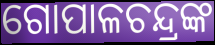
ଗୋପାଳଚନ୍ଦ୍ରଙ୍କ